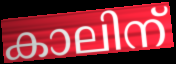
കാലിന്